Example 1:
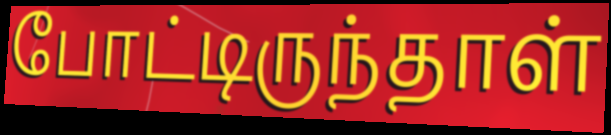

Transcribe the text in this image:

போட்டிருந்தாள்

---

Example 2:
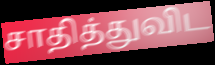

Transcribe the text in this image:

சாதித்துவிட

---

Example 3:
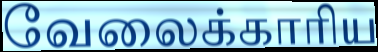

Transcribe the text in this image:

வேலைக்காரிய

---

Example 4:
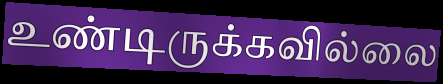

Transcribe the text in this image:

உண்டிருக்கவில்லை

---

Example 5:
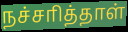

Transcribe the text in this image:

நச்சரித்தாள்